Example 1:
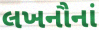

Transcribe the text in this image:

લખનૌનાં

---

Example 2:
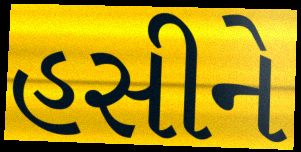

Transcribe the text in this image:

હસીને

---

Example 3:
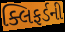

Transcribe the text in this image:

ક્લિફર્ડની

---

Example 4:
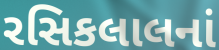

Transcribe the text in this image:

રસિકલાલનાં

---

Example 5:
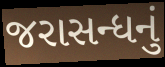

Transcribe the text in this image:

જરાસન્ધનું